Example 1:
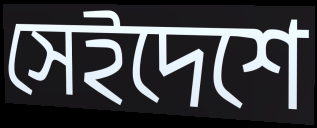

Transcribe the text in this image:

সেইদেশে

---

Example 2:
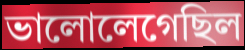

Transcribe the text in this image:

ভালোলেগেছিল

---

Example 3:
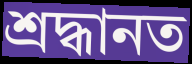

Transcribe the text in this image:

শ্রদ্ধানত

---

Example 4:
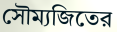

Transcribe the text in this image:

সৌম্যজিতের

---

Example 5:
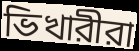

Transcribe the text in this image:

ভিখারীরা